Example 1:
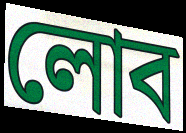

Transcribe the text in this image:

লোব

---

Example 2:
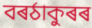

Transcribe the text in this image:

বৰঠাকুৰৰ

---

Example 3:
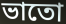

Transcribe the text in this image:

ভাতো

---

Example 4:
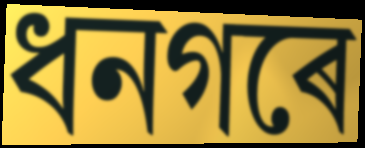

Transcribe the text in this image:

ধনগৰে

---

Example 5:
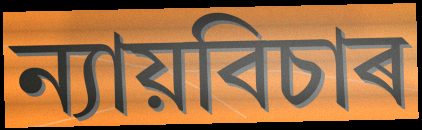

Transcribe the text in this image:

ন্যায়বিচাৰ